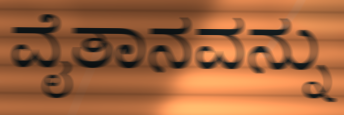
ವೈತಾನವನ್ನು